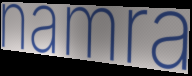
namra